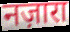
नज़ारा